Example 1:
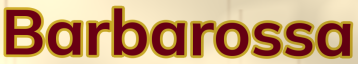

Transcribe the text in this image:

Barbarossa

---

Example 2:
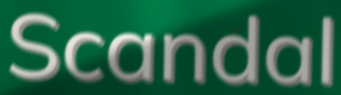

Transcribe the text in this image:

Scandal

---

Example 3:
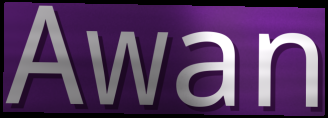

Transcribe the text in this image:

Awan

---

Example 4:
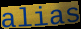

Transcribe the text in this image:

alias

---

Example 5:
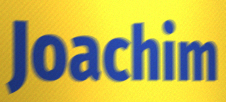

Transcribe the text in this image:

Joachim